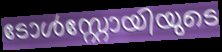
ടോൾസ്റ്റോയിയുടെ